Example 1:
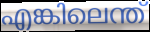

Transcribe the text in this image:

എങ്കിലെന്ത്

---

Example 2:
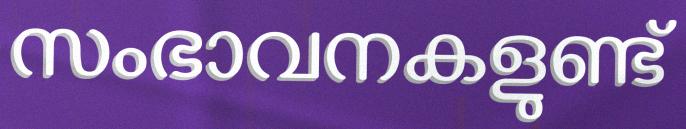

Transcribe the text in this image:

സംഭാവനകളുണ്ട്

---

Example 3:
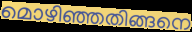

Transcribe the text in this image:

മൊഴിഞ്ഞതിങ്ങനെ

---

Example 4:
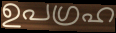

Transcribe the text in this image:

ഉപഗ്രഹ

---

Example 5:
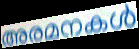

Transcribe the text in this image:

അരമനകൾ